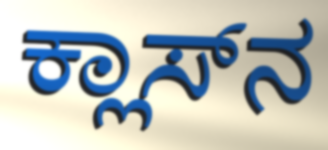
ಕ್ಲಾಸ್‌ನ